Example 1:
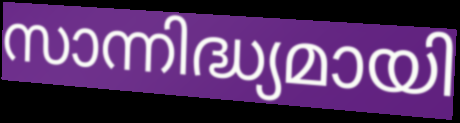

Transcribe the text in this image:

സാന്നിദ്ധ്യമായി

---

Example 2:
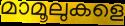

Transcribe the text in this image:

മാമൂലുകളെ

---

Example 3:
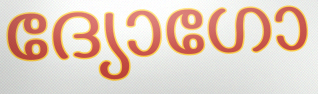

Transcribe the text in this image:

ദ്യോഗോ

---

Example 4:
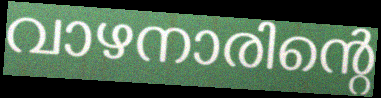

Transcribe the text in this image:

വാഴനാരിന്റെ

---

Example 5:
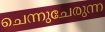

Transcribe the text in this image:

ചെന്നുചേരുന്ന